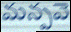
మన్పవె